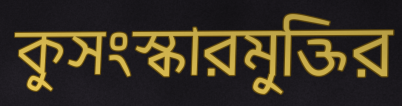
কুসংস্কারমুক্তির